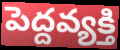
పెద్దవ్యక్తి